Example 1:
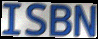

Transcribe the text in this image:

ISBN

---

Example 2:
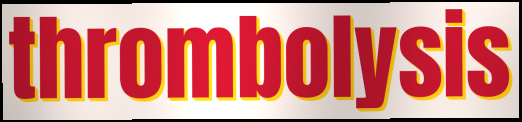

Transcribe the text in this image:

thrombolysis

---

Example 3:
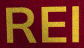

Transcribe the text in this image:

REI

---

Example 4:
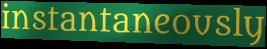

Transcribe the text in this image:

instantaneously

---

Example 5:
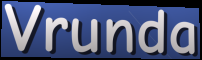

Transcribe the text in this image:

Vrunda